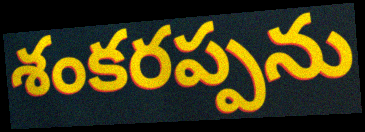
శంకరప్పను